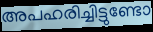
അപഹരിച്ചിട്ടുണ്ടോ